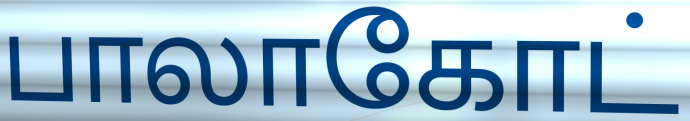
பாலாகோட்